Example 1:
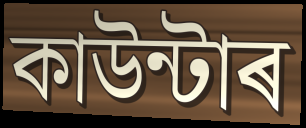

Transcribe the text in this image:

কাউন্টাৰ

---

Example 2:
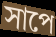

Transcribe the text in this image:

সাপে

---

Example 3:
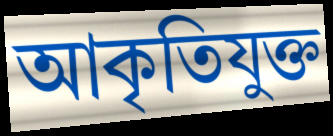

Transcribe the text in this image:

আকৃতিযুক্ত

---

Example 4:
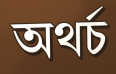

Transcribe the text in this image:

অথৰ্চ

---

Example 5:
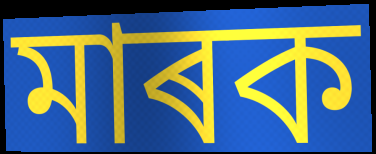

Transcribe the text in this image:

মাৰক